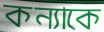
কন্যাকে